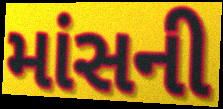
માંસની